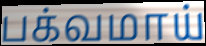
பக்வமாய்